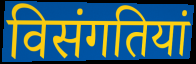
विसंगतियां